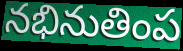
నభినుతింప